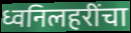
ध्वनिलहरींचा